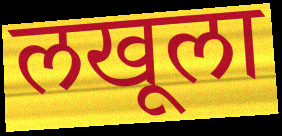
लखूला